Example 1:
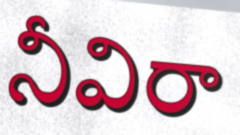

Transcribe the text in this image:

నీవిరా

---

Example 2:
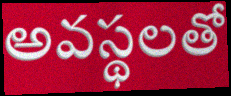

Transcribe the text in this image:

అవస్థలతో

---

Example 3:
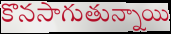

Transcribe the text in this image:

కొనసాగుతున్నాయి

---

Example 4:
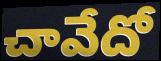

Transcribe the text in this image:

చావేదో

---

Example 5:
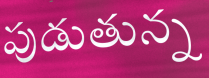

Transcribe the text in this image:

పుడుతున్న